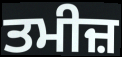
ਤਮੀਜ਼